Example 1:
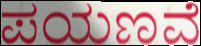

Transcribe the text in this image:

ಪಯಣವೆ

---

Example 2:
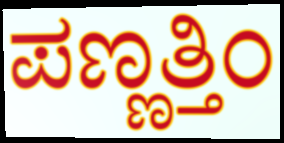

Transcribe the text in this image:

ಪಣ್ಣತ್ತಿಂ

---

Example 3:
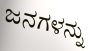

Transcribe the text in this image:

ಜನಗಳನ್ನು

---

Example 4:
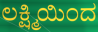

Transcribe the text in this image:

ಲಕ್ಷ್ಮಿಯಿಂದ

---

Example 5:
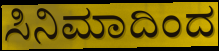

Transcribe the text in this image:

ಸಿನಿಮಾದಿಂದ